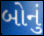
બોનું